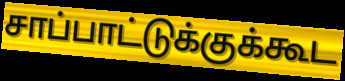
சாப்பாட்டுக்குக்கூட